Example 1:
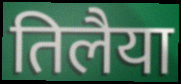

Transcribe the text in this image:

तिलैया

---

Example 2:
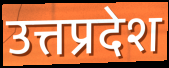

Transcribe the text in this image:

उत्तप्रदेश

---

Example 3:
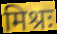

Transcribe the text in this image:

मिश्रः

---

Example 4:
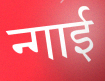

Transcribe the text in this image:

न्गाई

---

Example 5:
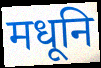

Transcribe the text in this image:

मधूनि